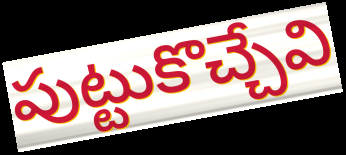
పుట్టుకొచ్చేవి